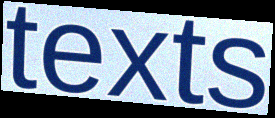
texts